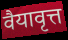
वैयावृत्त